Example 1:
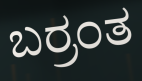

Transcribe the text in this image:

ಬರ್ರಂತ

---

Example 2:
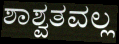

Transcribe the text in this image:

ಶಾಶ್ವತವಲ್ಲ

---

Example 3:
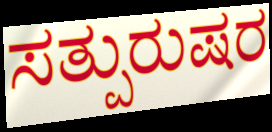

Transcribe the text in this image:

ಸತ್ಪುರುಷರ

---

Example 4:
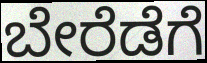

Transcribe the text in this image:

ಬೇರೆಡೆಗೆ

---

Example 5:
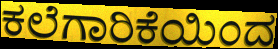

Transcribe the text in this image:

ಕಲೆಗಾರಿಕೆಯಿಂದ